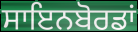
ਸਾਇਨਬੋਰਡਾਂ